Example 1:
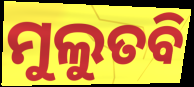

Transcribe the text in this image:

ମୁଲୁତବି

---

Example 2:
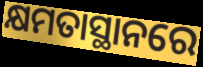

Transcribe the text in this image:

କ୍ଷମତାସ୍ଥାନରେ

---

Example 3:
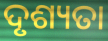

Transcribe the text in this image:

ଦୃଶ୍ୟତା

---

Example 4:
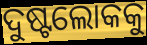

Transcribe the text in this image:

ଦୁଷ୍ଟଲୋକକୁ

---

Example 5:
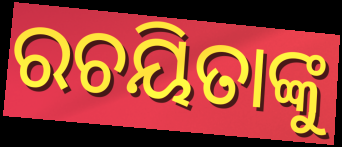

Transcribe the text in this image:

ରଚୟିତାଙ୍କୁ